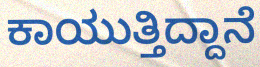
ಕಾಯುತ್ತಿದ್ದಾನೆ